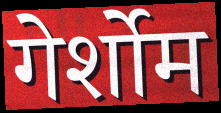
गेर्शोम